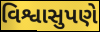
વિશ્વાસુપણે